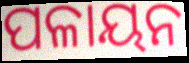
ପଳାୟନ